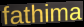
fathima